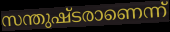
സന്തുഷ്ടരാണെന്ന്